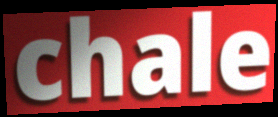
chale